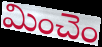
మించెం